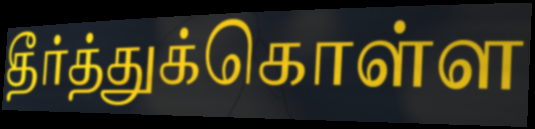
தீர்த்துக்கொள்ள